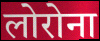
लोरोना